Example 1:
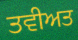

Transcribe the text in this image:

ਤਵੀਅਤ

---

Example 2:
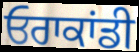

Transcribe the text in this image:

ਓਰਾਕਾਂਡੀ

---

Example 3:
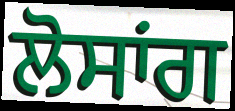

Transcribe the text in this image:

ਲੋਸਾਂਗ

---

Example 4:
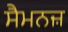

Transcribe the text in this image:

ਸੈਮਨਜ਼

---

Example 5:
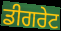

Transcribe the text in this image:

ਡੀਗਰੇਟ